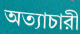
অত্যাচারী